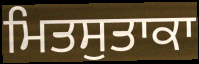
ਮਿਤਸੁਤਾਕਾ